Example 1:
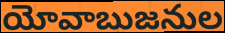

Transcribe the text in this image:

యోవాబుజనుల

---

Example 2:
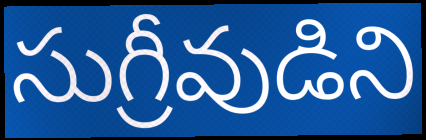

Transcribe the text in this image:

సుగ్రీవుడిని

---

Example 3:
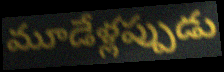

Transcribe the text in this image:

మూడేళ్లప్పుడు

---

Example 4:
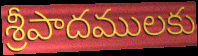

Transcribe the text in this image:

శ్రీపాదములకు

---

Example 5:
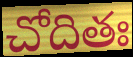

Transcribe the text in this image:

చోదితః